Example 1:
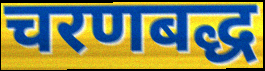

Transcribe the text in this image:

चरणबद्ध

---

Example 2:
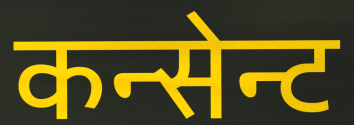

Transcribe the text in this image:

कन्सेन्ट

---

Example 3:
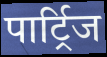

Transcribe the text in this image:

पार्ट्रिज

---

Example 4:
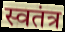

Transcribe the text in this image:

स्‍वतंत्र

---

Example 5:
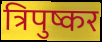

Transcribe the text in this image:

त्रिपुष्कर